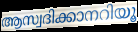
ആസ്വദിക്കാനറിയൂ